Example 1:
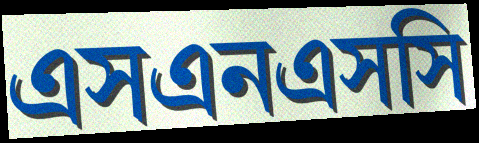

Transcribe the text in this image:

এসএনএসসি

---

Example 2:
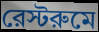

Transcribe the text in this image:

রেস্টরুমে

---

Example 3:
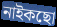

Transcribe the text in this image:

নাইকছো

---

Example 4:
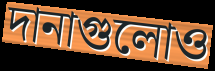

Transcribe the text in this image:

দানাগুলোও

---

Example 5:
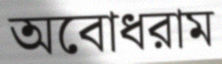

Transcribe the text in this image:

অবোধরাম